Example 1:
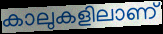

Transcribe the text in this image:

കാലുകളിലാണ്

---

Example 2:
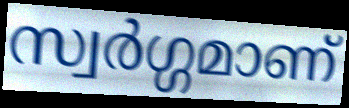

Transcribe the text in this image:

സ്വർഗ്ഗമാണ്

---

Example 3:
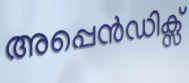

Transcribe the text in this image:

അപ്പെൻഡിക്സ്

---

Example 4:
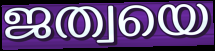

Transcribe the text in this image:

ജത്വയെ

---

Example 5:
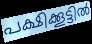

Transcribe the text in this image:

പക്ഷിക്കൂട്ടിൽ